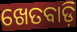
ଖେତବାଡ଼ି